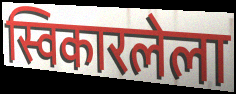
स्विकारलेला